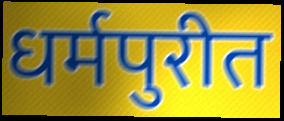
धर्मपुरीत